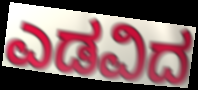
ಎಡವಿದ